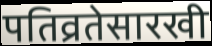
पतिव्रतेसारखी